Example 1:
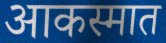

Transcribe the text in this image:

आकस्मात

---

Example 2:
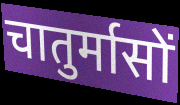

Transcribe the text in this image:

चातुर्मासों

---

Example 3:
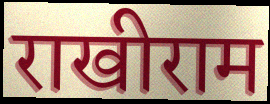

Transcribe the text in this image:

राखीराम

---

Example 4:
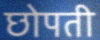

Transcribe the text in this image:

छोपती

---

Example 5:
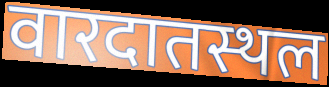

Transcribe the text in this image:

वारदातस्थल